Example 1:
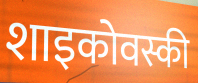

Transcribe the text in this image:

शाइकोवस्की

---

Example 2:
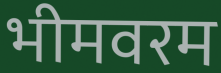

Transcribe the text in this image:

भीमवरम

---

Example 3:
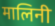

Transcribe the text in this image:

मालिनी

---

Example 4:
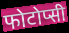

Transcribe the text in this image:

फोटोप्सी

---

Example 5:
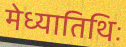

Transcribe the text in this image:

मेध्यातिथिः